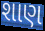
શાણ